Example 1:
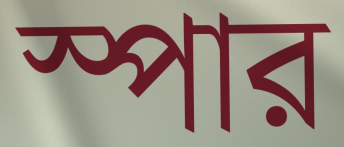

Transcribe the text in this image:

স্পার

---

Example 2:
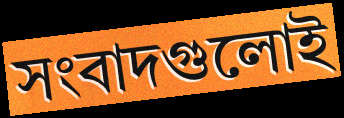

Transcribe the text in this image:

সংবাদগুলোই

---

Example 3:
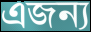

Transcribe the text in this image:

এজন্য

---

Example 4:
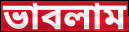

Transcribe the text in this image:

ভাবলাম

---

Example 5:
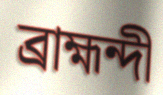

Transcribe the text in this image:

ব্রাহ্মন্দী